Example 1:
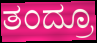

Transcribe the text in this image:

ತಂದ್ರೂ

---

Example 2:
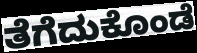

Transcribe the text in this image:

ತೆಗೆದುಕೊಂಡೆ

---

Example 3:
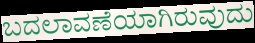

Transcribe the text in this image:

ಬದಲಾವಣೆಯಾಗಿರುವುದು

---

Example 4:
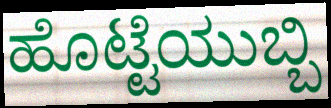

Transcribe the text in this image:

ಹೊಟ್ಟೆಯುಬ್ಬಿ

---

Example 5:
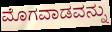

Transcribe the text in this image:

ಮೊಗವಾಡವನ್ನು